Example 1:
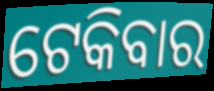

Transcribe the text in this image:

ଟେକିବାର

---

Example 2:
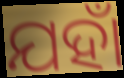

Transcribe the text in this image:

ଯହାଁ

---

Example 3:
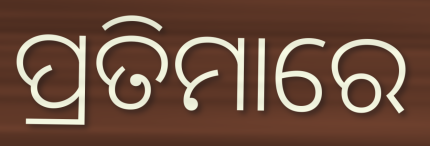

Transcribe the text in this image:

ପ୍ରତିମାରେ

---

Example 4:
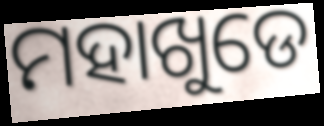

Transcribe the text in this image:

ମହାଖୁଡେ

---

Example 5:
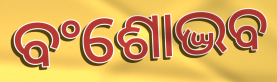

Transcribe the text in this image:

ବଂଶୋଦ୍ଭବ